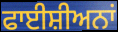
ਫਾਈਸ਼ੀਅਨਾਂ